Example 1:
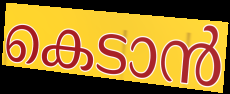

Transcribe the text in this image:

കെടാൻ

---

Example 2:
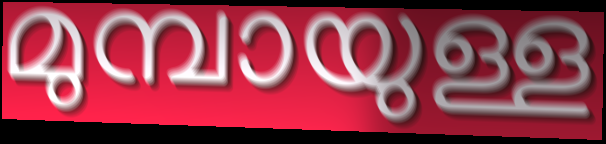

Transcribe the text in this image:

മുമ്പായുള്ള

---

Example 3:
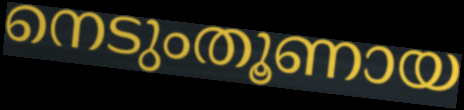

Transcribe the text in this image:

നെടുംതൂണായ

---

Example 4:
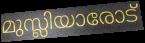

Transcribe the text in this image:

മുസ്ലിയാരോട്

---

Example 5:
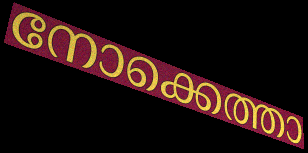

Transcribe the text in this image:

നോക്കെത്താ